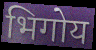
भिगोय